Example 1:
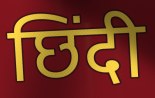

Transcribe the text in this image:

छिंदी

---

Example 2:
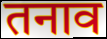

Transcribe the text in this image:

तनाव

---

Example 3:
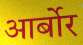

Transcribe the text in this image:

आर्बोर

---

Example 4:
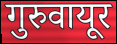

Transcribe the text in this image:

गुरुवायूर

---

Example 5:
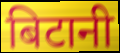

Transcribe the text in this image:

बिटानी